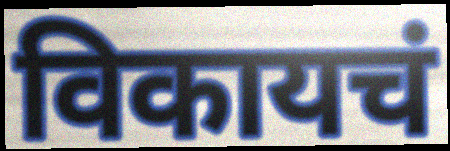
विकायचं